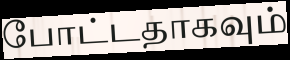
போட்டதாகவும்